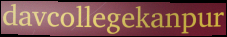
davcollegekanpur